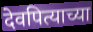
देवपित्याच्या